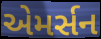
એમર્સન